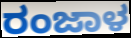
ರಂಜಾಳ